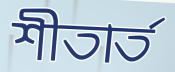
শীতার্ত